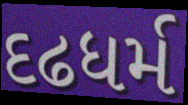
દઢધર્મ